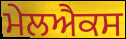
ਮੇਲਐਕਸ